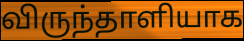
விருந்தாளியாக